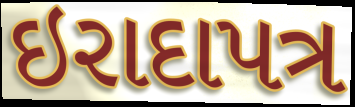
ઇરાદાપત્ર